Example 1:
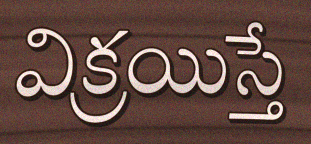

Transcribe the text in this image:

విక్రయిస్తే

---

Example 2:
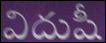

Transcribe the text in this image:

విదుషీ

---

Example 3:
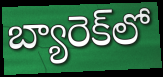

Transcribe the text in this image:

బ్యారెక్‌లో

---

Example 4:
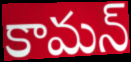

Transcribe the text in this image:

కామన్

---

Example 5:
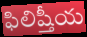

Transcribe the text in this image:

ఫిలిష్తీయ